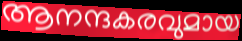
ആനന്ദകരവുമായ